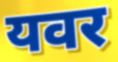
यवर